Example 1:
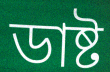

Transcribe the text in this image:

ডাষ্ট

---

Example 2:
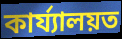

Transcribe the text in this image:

কাৰ্য্যালয়ত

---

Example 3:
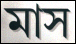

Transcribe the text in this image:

মাস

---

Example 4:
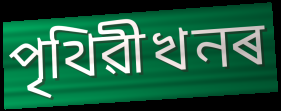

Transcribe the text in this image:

পৃথিৱীখনৰ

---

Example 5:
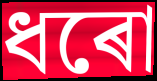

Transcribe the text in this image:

ধৰো